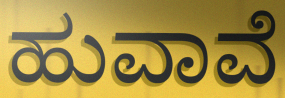
ಹುವಾವೆ